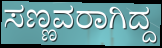
ಸಣ್ಣವರಾಗಿದ್ದ